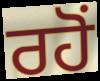
ਰਹੋਂ